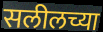
सलीलच्या